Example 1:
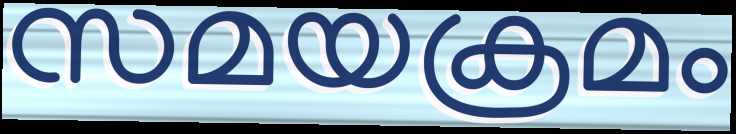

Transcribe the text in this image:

സമയക്രമം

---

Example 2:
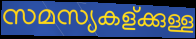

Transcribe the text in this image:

സമസ്യകള്ക്കുള്ള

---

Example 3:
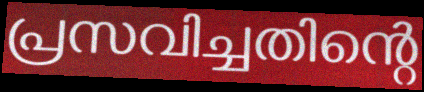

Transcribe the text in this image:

പ്രസവിച്ചതിന്റെ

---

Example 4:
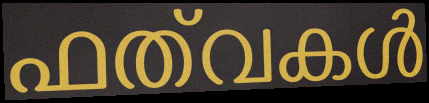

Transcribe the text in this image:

ഫത്‌വകൾ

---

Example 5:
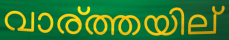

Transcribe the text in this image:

വാര്ത്തയില്